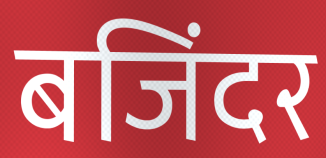
बजिंदर